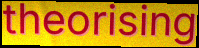
theorising